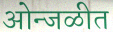
ओन्जळीत